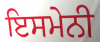
ਇਸਮੇਨੀ